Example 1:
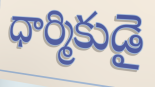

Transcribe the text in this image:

ధార్మికుడై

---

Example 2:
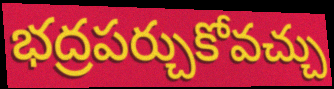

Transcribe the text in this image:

భద్రపర్చుకోవచ్చు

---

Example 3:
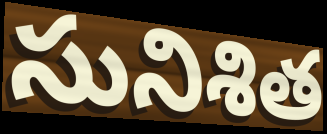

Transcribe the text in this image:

సునిశిత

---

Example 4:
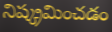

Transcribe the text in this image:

నిష్క్రమించడం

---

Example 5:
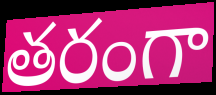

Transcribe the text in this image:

తరంగా